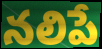
నలిపే